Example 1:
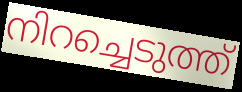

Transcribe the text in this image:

നിറച്ചെടുത്ത്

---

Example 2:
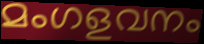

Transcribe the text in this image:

മംഗളവനം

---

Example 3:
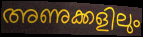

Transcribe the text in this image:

അണുക്കളിലും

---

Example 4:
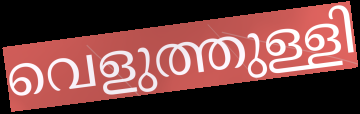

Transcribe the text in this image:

വെളുത്തുള്ളി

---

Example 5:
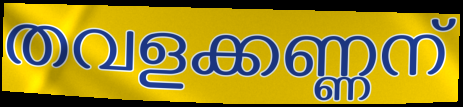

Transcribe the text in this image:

തവളക്കണ്ണന്